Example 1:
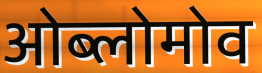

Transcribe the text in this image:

ओब्लोमोव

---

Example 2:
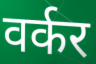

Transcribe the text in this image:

वर्कर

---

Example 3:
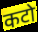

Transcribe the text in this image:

कटो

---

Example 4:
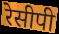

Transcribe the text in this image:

रेसीपी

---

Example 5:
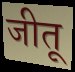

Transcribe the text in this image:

जीतू